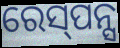
ରେସ୍‌ପନ୍ସ